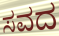
ಸವದ